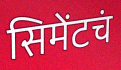
सिमेंटचं